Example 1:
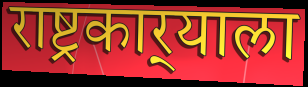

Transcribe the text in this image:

राष्ट्रकार्याला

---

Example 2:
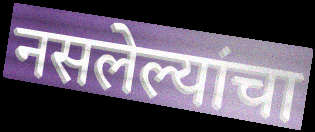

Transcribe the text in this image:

नसलेल्यांचा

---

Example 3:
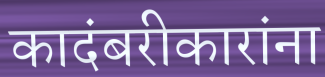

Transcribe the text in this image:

कादंबरीकारांना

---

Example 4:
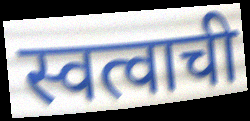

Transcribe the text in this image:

स्वत्वाची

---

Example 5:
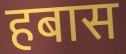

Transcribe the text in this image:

हबास